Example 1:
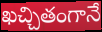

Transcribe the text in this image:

ఖచ్చితంగానే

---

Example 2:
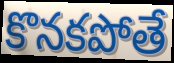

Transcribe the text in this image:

కొనకపోతే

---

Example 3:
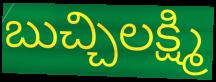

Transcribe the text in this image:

బుచ్చిలక్ష్మి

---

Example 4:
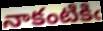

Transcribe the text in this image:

నాకంటికిఁ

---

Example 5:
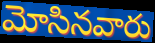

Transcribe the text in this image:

మోసినవారు